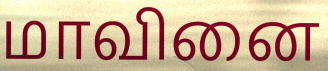
மாவினை